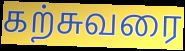
கற்சுவரை